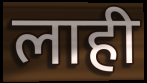
लाही